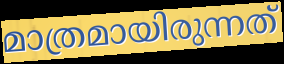
മാത്രമായിരുന്നത്